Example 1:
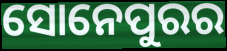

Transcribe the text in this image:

ସୋନେପୁରର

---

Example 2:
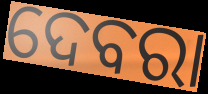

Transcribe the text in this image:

ଦେବରା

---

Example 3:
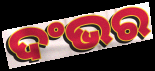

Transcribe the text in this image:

ଦଂଭର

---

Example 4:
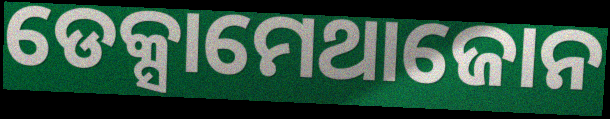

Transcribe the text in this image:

ଡେକ୍ସାମେଥାଜୋନ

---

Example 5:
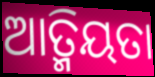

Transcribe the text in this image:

ଆତ୍ମିୟତା